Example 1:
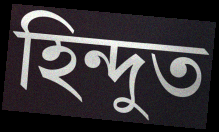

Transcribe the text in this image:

হিন্দুত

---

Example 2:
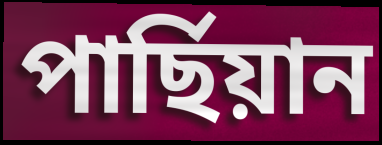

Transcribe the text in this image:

পাৰ্ছিয়ান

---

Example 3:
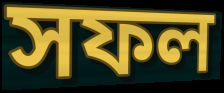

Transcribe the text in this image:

সফল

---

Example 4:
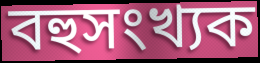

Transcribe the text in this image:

বহুসংখ্যক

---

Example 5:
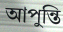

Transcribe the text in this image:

আপুন্তি